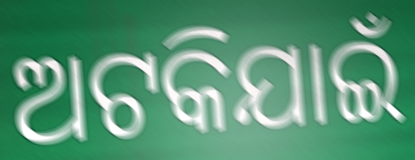
ଅଟକିଯାଇଁ